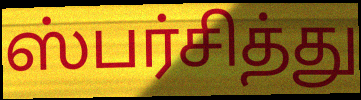
ஸ்பர்சித்து